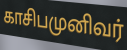
காசிபமுனிவர்